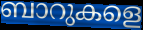
ബാറുകളെ